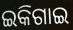
ଇକିଗାଇ